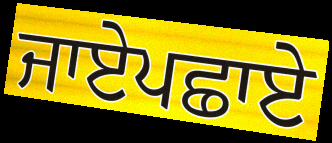
ਜਾਏਪਛਾਏ